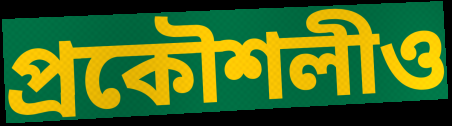
প্রকৌশলীও